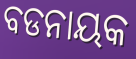
ବଡନାୟକ